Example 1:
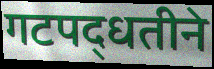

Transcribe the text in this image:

गटपद्धतीने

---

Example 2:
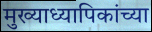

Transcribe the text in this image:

मुख्याध्यापिकांच्या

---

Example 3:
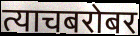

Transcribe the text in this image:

त्याचबरोबर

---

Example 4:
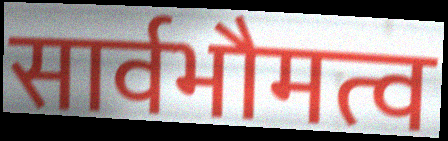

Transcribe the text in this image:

सार्वभौमत्व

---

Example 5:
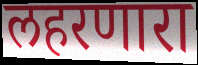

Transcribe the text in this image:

लहरणारा